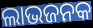
ଲାଭଜନକ